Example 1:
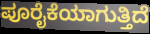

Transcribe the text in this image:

ಪೂರೈಕೆಯಾಗುತ್ತಿದೆ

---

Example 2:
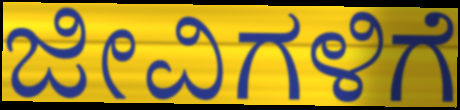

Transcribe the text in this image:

ಜೀವಿಗಳಿಗೆ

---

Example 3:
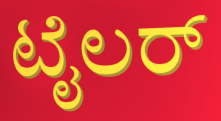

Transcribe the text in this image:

ಟೈಲರ್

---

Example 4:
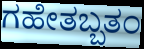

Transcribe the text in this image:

ಗಹೇತಬ್ಬತಂ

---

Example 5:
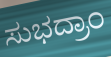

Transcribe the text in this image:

ಸುಭದ್ರಾಂ